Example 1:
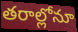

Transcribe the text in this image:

తరాల్లోనూ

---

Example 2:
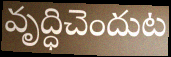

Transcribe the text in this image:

వృద్ధిచెందుట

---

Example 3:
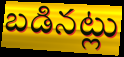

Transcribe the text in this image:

బడినట్లు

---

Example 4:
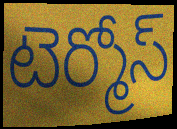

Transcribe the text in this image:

టెర్మోస్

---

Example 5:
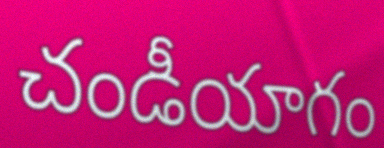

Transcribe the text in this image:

చండీయాగం